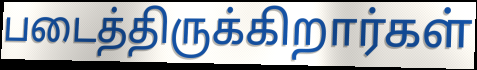
படைத்திருக்கிறார்கள்